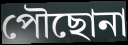
পৌছোনা